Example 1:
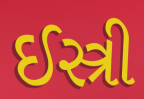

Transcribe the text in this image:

ઈસ્ત્રી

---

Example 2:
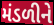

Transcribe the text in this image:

મંડળીને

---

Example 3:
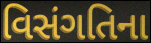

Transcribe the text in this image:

વિસંગતિના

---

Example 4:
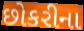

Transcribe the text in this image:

છોકરીના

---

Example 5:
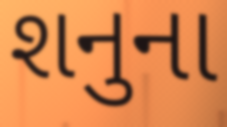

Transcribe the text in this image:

શનુના